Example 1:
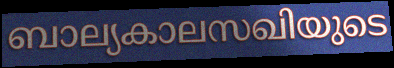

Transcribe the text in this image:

ബാല്യകാലസഖിയുടെ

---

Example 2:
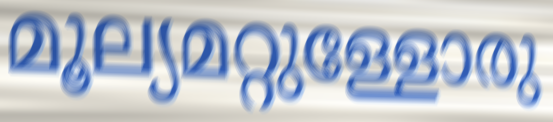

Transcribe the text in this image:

മൂല്യമറ്റുള്ളോരു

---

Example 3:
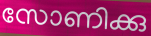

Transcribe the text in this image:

സോണിക്കു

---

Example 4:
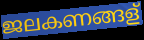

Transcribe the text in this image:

ജലകണങ്ങള്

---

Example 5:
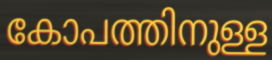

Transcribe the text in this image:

കോപത്തിനുള്ള